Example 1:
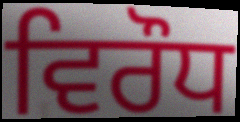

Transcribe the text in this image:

ਵਿਰੌਧ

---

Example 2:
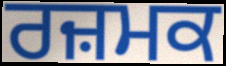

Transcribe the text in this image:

ਰਜ਼ਮਕ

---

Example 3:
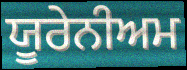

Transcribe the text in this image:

ਯੂਰੇਨੀਅਮ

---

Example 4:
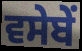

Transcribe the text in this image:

ਵਸੇਬੇਂ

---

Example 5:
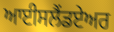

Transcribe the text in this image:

ਆਈਸਲੈਂਡਏਅਰ